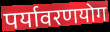
पर्यावरणयोग